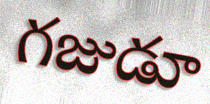
గజుడూ